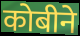
कोबीने